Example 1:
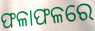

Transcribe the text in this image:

ଫଳାଫଳରେ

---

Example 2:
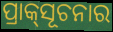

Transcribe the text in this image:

ପ୍ରାକ୍‌ସୂଚନାର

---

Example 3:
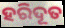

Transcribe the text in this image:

ହରିଦୂତ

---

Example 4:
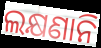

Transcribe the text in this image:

ଲକ୍ଷଣାନି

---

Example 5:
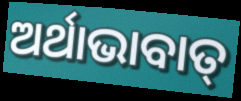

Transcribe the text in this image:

ଅର୍ଥାଭାବାତ୍